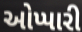
ઓપ્પારી